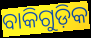
ବାକିଗୁଡ଼ିକ